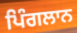
ਪਿੰਗਲਾਨ